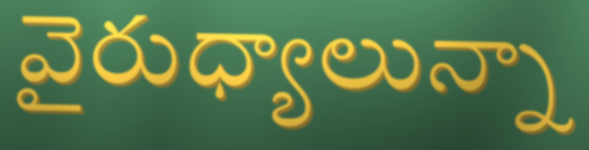
వైరుధ్యాలున్నా